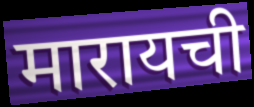
मारायची